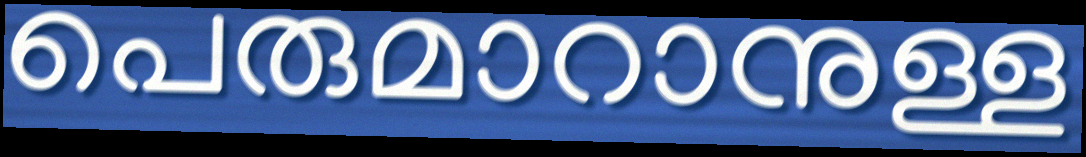
പെരുമാറാനുള്ള